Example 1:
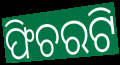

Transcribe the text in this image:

ଫିଚରଟି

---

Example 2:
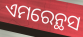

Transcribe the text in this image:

ଏମରେନ୍ଥସ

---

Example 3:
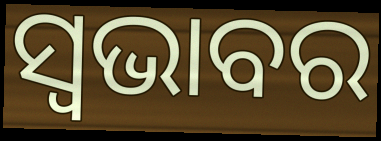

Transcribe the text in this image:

ସ୍ୱଭାବର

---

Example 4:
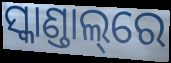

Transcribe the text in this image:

ସ୍କାଣ୍ଡାଲ୍‌ରେ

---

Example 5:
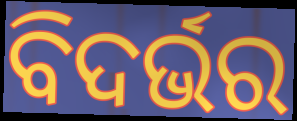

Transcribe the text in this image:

ବିଦର୍ଭର